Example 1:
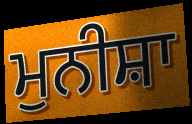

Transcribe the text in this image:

ਮੁਨੀਸ਼ਾ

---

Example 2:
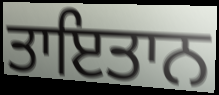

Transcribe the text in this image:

ਤਾਇਤਾਨ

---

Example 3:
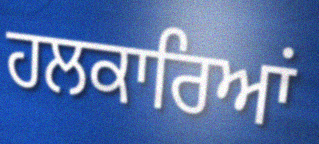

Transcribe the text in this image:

ਹਲਕਾਰਿਆਂ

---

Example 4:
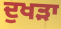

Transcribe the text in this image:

ਦੁਖੜਾ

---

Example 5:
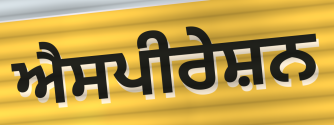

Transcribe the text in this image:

ਐਸਪੀਰੇਸ਼ਨ